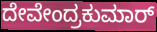
ದೇವೇಂದ್ರಕುಮಾರ್